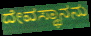
ದೇವಸ್ಥಾನನು